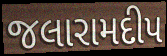
જલારામદીપ